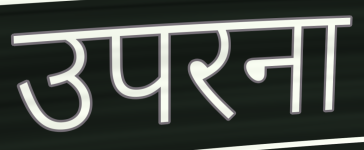
उपरना